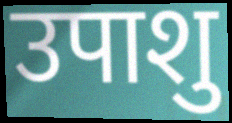
उपाशु